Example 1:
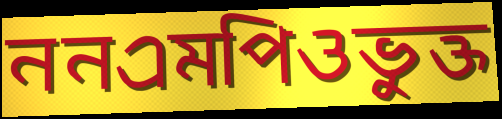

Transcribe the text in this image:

ননএমপিওভুক্ত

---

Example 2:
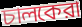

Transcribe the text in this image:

চালকেরা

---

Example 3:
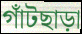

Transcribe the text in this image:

গাঁটছাড়া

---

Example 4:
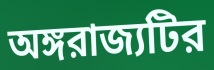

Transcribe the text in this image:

অঙ্গরাজ্যটির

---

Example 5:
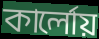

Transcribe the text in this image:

কার্লোয়